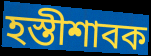
হস্তীশাবক